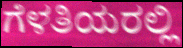
ಗೆಳತಿಯರಲ್ಲಿ